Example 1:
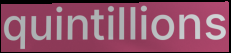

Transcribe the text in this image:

quintillions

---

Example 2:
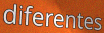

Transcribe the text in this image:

diferentes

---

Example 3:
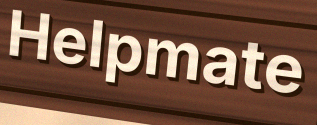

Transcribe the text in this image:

Helpmate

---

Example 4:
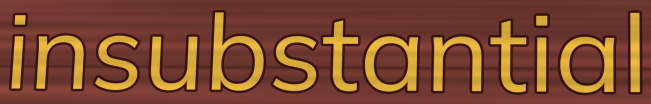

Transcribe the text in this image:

insubstantial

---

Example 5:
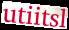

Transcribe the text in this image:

utiitsl